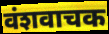
वंशवाचक